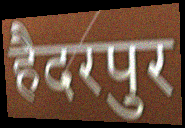
हैदरपुर